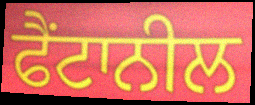
ਫੈਂਟਾਨੀਲ